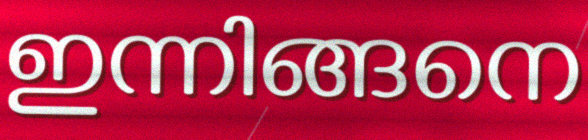
ഇന്നിങ്ങനെ